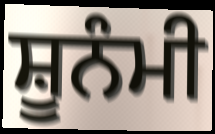
ਸ਼ੂਨੰਮੀ